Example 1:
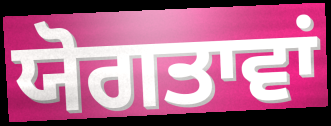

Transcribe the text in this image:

ਯੋਗਤਾਵਾਂ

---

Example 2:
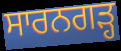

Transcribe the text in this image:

ਸਾਰਨਗੜ੍ਹ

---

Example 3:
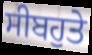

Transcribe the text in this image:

ਸੀਬਹੁਤੇ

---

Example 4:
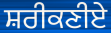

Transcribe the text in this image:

ਸ਼ਰੀਕਣੀਏ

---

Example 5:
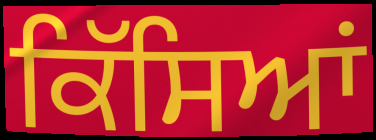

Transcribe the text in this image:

ਕਿੱਸਿਆਂ